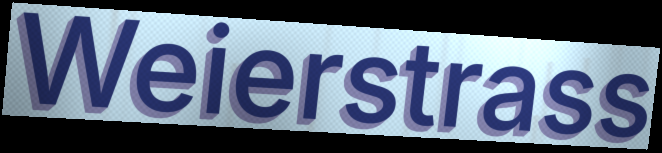
Weierstrass